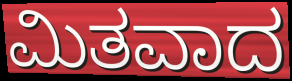
ಮಿತವಾದ